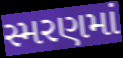
સ્મરણમાં